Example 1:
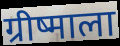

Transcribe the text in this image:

ग्रीष्माला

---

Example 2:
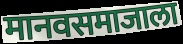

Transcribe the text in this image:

मानवसमाजाला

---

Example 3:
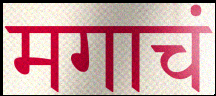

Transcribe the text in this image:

मगाचं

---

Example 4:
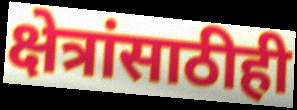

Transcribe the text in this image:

क्षेत्रांसाठीही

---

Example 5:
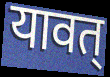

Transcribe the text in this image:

यावत्